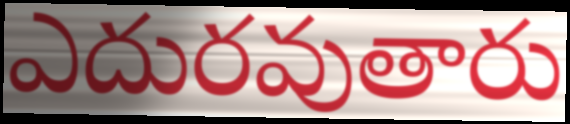
ఎదురవుతారు